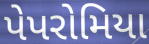
પેપરોમિયા